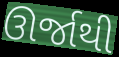
ઊર્જાથી